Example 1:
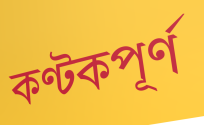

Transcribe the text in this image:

কণ্টকপূর্ণ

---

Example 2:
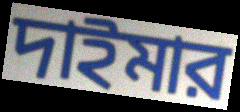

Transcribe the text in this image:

দাইমার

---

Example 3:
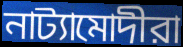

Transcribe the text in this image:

নাট্যামোদীরা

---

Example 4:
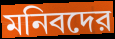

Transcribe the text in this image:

মনিবদের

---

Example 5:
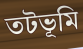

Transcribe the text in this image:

তটভূমি